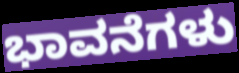
ಭಾವನೆಗಳು